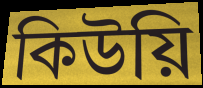
কিউয়ি